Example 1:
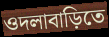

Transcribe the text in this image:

ওদলাবাড়িতে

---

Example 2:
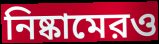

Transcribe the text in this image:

নিষ্কামেরও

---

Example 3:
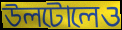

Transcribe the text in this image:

উলটোলেও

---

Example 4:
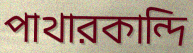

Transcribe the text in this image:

পাথারকান্দি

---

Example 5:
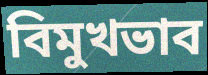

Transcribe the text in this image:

বিমুখভাব